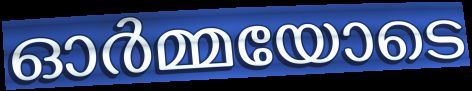
ഓർമ്മയോടെ